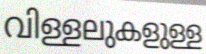
വിള്ളലുകളുള്ള